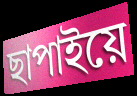
ছাপাইয়ে